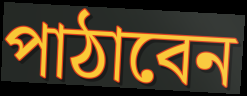
পাঠাবেন